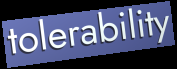
tolerability